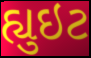
હ્યુઇટ